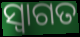
ସ୍ୱାଗତ